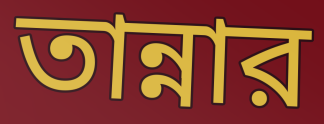
তান্নার